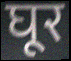
घूर